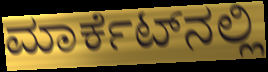
ಮಾರ್ಕೆಟ್‍ನಲ್ಲಿ